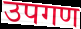
उपगण